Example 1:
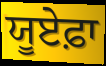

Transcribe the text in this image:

ਯੂਏਫ਼ਾ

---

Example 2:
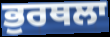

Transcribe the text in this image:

ਭੁਰਥਲਾ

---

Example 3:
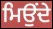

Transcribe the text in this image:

ਮਿਉਂਦੇ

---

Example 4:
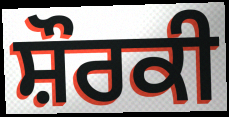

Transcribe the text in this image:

ਸ਼ੌਰਕੀ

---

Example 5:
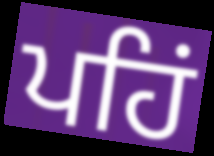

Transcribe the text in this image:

ਪਹਿਂ